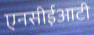
एनसीईआटी